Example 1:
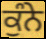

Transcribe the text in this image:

ਕੁੰਨੇ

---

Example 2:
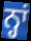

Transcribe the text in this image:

ਨ੍ਹਾਂ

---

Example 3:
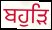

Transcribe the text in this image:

ਬਹੁੜਿ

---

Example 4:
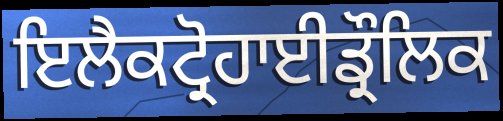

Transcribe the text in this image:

ਇਲੈਕਟ੍ਰੋਹਾਈਡ੍ਰੌਲਿਕ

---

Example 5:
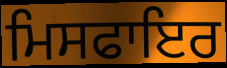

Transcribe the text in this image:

ਮਿਸਫਾਇਰ